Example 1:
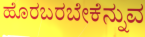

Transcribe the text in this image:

ಹೊರಬರಬೇಕೆನ್ನುವ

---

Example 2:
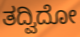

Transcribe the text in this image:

ತದ್ವಿದೋ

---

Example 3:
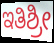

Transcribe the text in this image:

ಇತಿಶ್ರೀ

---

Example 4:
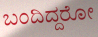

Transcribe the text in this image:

ಬಂದಿದ್ದರೋ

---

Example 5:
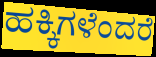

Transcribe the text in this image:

ಹಕ್ಕಿಗಳೆಂದರೆ